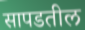
सापडतील